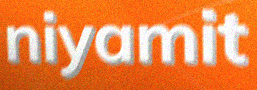
niyamit